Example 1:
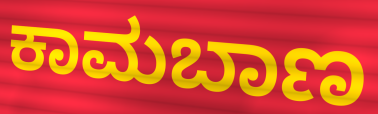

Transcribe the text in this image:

ಕಾಮಬಾಣ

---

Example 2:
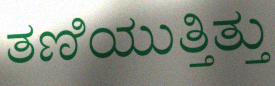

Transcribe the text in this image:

ತಣಿಯುತ್ತಿತ್ತು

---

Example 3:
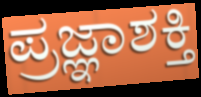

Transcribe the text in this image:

ಪ್ರಜ್ಞಾಶಕ್ತಿ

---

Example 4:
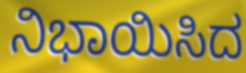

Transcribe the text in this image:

ನಿಭಾಯಿಸಿದ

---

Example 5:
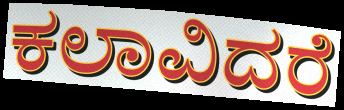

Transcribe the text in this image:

ಕಲಾವಿದರೆ